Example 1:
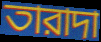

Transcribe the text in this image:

তারাদা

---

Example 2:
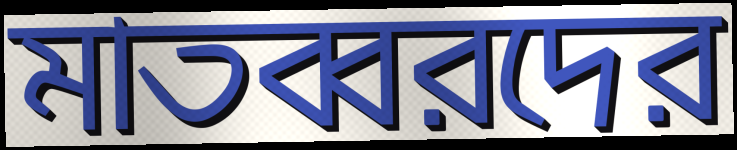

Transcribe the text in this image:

মাতব্বরদের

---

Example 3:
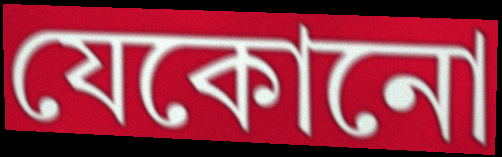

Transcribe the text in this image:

যেকোনো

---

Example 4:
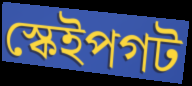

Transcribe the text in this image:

স্কেইপগট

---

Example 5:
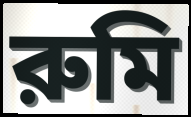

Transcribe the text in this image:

রুমি